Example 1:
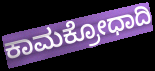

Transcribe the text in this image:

ಕಾಮಕ್ರೋಧಾದಿ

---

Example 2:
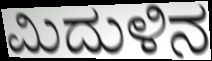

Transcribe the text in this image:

ಮಿದುಳಿನ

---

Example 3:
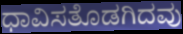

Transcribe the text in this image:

ಧಾವಿಸತೊಡಗಿದವು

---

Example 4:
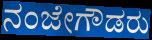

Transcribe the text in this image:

ನಂಜೇಗೌಡರು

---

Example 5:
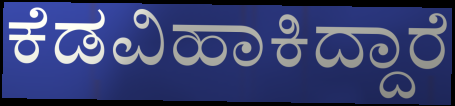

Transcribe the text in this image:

ಕೆಡವಿಹಾಕಿದ್ದಾರೆ